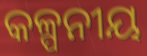
କଳ୍ପନୀୟ